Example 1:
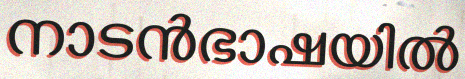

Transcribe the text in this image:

നാടൻഭാഷയിൽ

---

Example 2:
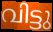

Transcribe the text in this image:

വിട്ടു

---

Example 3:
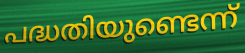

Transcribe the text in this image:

പദ്ധതിയുണ്ടെന്ന്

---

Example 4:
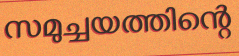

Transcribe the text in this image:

സമുച്ചയത്തിന്റെ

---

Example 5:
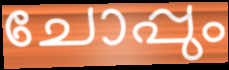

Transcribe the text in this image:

ചോപ്പും